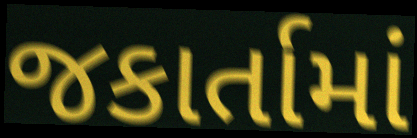
જકાર્તામાં